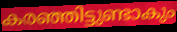
കരഞ്ഞിട്ടുണ്ടാകും